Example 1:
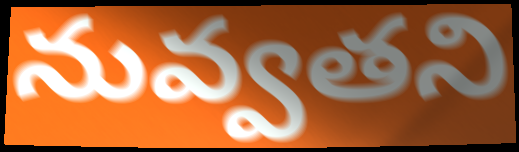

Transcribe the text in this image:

నువ్వతని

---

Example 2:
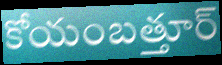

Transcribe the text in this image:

కోయంబత్తూర్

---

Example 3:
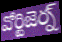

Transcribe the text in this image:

వోర్టిజెర్న్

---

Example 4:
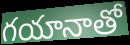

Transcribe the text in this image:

గయానాతో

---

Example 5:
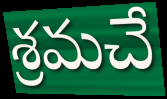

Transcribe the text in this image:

శ్రమచే